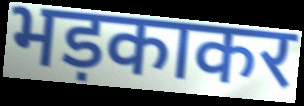
भड़काकर